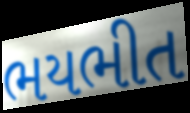
ભયભીત